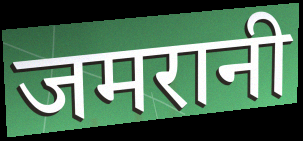
जमरानी